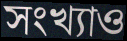
সংখ্যাও